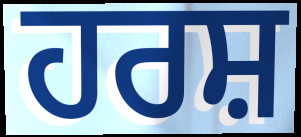
ਹਰਸ਼